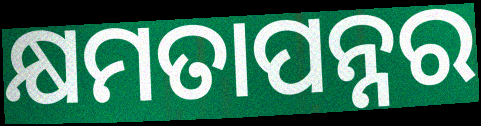
କ୍ଷମତାପନ୍ନର